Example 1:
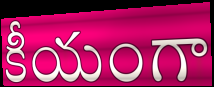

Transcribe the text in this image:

కీయంగా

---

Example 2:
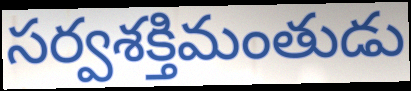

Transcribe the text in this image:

సర్వశక్తిమంతుడు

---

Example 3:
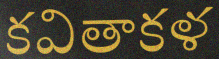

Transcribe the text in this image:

కవితాకళ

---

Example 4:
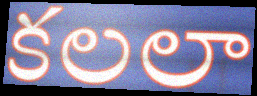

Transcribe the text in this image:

కలలా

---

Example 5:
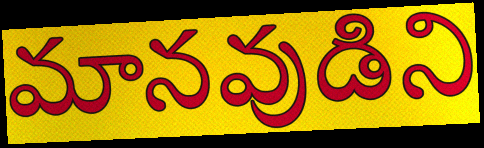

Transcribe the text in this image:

మానవుడిని